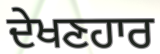
ਦੇਖਣਹਾਰ